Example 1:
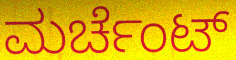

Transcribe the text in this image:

ಮರ್ಚೆಂಟ್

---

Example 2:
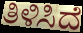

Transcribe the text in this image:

ತಿಳಿಸಿದೆ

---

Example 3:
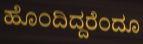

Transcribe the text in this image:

ಹೊಂದಿದ್ದರೆಂದೂ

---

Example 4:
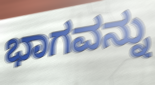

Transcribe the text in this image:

ಭಾಗವನ್ನು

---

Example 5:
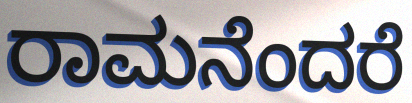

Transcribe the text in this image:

ರಾಮನೆಂದರೆ